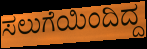
ಸಲುಗೆಯಿಂದಿದ್ದ